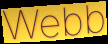
Webb